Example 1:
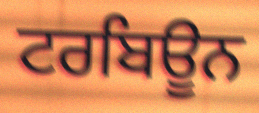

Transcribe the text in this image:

ਟਰਬਿਊਨ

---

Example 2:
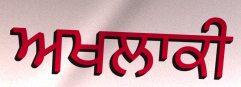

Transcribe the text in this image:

ਅਖਲਾਕੀ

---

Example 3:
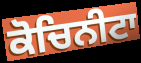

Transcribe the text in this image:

ਕੋਚਿਨੀਟਾ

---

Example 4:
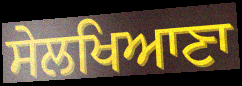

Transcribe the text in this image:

ਸੇਲਖਿਆਣਾ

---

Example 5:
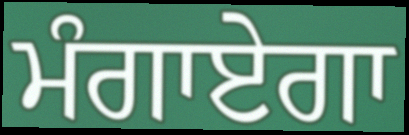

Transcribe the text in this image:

ਮੰਗਾਏਗਾ